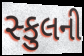
સ્કુલની